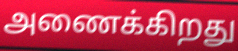
அணைக்கிறது